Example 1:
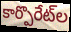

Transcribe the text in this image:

కార్పొరేట్‌ల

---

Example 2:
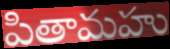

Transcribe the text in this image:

పితామహు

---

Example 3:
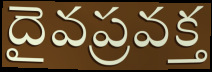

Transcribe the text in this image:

దైవప్రవక్త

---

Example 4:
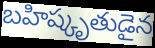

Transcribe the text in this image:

బహిష్కృతుడైన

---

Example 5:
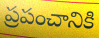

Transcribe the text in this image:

ప్రపంచానికి